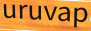
uruvap